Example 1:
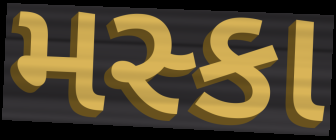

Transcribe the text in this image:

મસ્કા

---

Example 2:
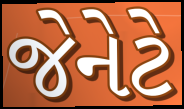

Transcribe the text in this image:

જેનેટે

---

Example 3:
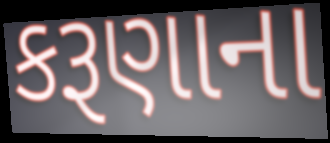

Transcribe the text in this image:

કરૂણાના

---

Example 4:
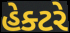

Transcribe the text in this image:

હેક્ટરે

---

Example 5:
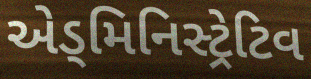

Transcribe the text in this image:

એડ્મિનિસ્ટ્રેટિવ